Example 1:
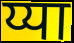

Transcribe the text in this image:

य्या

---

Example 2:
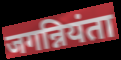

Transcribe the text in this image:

जगन्नियंता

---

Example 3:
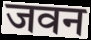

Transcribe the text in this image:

जवन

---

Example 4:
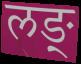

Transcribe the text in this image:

लङ्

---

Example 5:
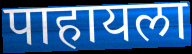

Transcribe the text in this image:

पाहायला